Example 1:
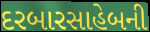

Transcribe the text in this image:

દરબારસાહેબની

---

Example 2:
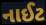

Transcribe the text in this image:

નાઈટ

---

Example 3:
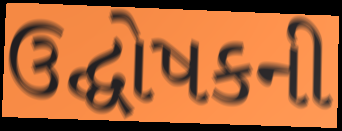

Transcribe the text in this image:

ઉદ્ઘોષકની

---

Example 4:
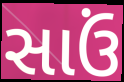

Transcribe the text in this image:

સાઉં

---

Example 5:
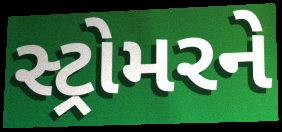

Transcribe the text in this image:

સ્ટ્રોમરને